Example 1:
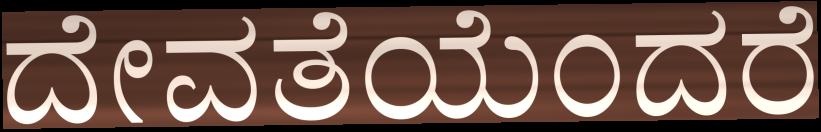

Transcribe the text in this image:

ದೇವತೆಯೆಂದರೆ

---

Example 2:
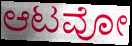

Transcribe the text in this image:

ಆಟವೋ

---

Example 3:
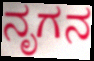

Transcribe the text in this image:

ನೃಗನ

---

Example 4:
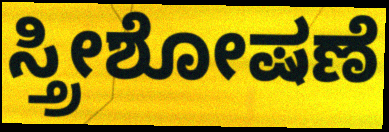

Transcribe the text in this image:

ಸ್ತ್ರೀಶೋಷಣೆ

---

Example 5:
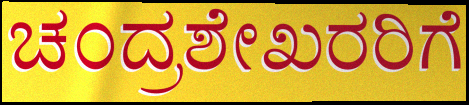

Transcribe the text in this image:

ಚಂದ್ರಶೇಖರರಿಗೆ